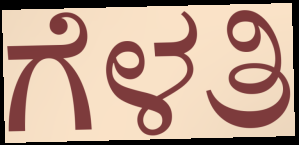
ಗೆಳತಿ